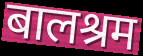
बालश्रम